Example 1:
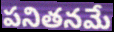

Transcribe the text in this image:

పనితనమే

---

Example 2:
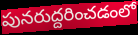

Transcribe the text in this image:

పునరుద్దరించడంలో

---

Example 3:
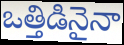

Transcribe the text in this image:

ఒత్తిడినైనా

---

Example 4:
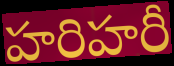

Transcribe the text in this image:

హరిహరీ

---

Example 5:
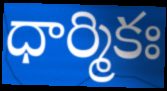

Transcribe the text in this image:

ధార్మికః